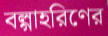
বল্গাহরিণের